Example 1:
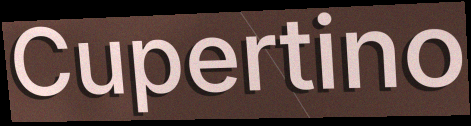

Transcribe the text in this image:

Cupertino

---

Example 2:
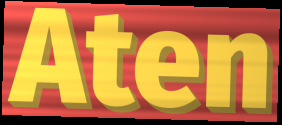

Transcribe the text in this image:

Aten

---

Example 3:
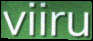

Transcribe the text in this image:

viiru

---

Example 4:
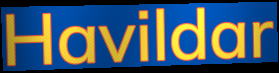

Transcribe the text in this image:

Havildar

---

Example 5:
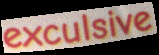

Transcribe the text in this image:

exculsive